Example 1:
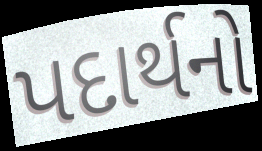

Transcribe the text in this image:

પદાર્થનો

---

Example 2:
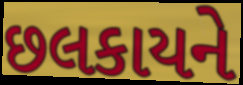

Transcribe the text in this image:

છલકાયને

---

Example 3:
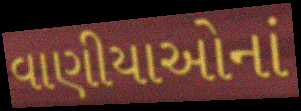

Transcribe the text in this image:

વાણીયાઓનાં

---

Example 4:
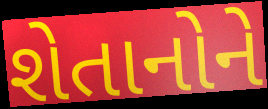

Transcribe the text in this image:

શેતાનોને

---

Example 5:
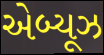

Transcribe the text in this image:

એબ્યૂઝ